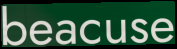
beacuse